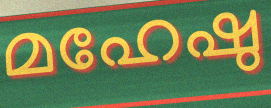
മഹേഷു